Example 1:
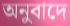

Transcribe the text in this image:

অনুবাদে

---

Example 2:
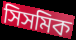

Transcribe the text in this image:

সিসমিক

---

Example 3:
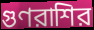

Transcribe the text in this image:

গুণরাশির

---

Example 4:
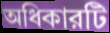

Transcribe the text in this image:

অধিকারটি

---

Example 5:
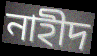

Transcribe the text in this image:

নাহীদ